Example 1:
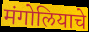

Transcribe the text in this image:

मंगोलियाचे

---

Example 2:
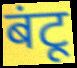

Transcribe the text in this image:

बंटू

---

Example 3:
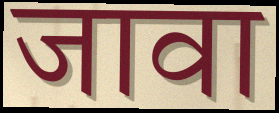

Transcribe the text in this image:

जावा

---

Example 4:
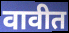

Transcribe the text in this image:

वावीत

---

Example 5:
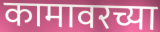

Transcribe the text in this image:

कामावरच्या